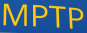
MPTP